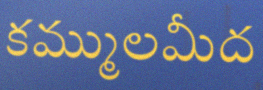
కమ్ములమీద